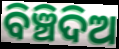
ବିଞ୍ଚିଦିଅ